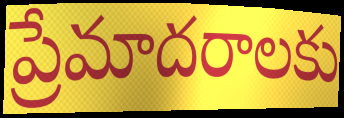
ప్రేమాదరాలకు